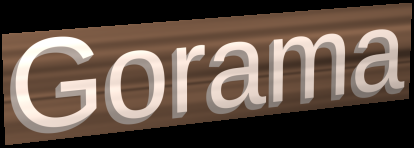
Gorama